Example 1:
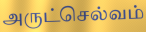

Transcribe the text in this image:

அருட்செல்வம்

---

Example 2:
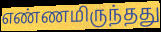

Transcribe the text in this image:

எண்ணமிருந்தது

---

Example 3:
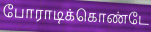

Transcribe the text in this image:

போராடிக்கொண்டே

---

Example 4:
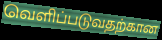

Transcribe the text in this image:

வெளிப்படுவதற்கான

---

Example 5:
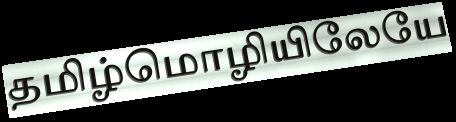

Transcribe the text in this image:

தமிழ்மொழியிலேயே